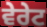
ਵੇਰੇਟ